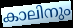
കാലിനും